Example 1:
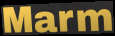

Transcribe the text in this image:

Marm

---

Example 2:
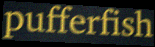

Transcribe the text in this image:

pufferfish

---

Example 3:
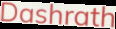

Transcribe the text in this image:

Dashrath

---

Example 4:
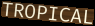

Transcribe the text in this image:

TROPICAL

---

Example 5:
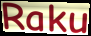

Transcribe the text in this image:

Raku